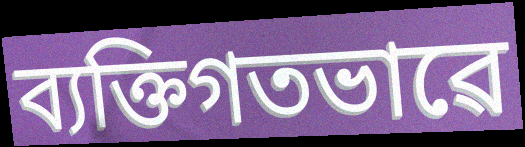
ব্যক্তিগতভাৱে